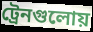
ট্রেনগুলোয়